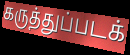
கருத்துப்படக்